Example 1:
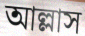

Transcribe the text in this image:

আল্লাস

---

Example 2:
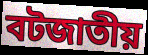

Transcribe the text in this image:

বটজাতীয়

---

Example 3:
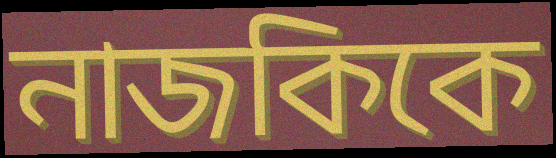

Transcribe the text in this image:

নাজকিকে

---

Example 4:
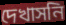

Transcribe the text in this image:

দেখাসনি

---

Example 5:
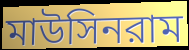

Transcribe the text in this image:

মাউসিনরাম